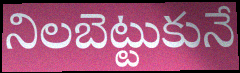
నిలబెట్టుకునే